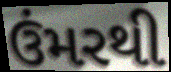
ઉંમરથી